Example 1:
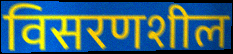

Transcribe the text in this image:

विसरणशील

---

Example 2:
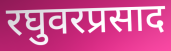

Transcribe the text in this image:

रघुवरप्रसाद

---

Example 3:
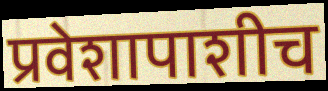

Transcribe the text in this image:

प्रवेशापाशीच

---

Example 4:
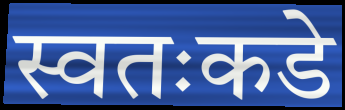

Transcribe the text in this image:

स्वतःकडे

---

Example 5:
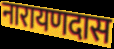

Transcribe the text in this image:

नारायणदास